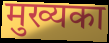
मुख्यका